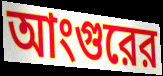
আংগুরের